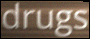
drugs